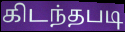
கிடந்தபடி